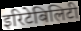
इरिटेबिलिटी